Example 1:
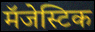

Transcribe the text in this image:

मॅजेस्टिक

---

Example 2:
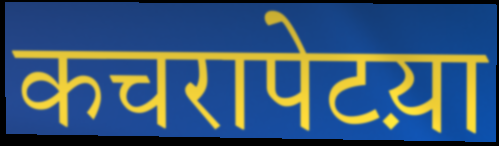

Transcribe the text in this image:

कचरापेटय़ा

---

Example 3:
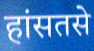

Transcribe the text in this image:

हांसतसे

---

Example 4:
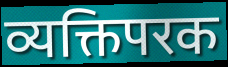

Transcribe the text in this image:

व्यक्तिपरक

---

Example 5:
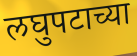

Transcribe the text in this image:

लघुपटाच्या